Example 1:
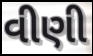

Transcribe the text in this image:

વીણી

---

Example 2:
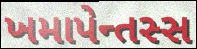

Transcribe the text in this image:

ખમાપેન્તસ્સ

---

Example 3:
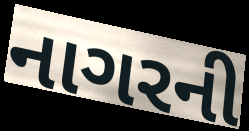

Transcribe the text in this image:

નાગરની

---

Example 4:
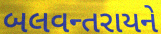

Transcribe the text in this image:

બલવન્તરાયને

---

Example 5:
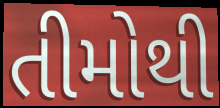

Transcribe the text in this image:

તીમોથી